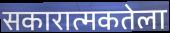
सकारात्मकतेला